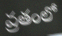
వ్రతంలో